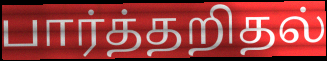
பார்த்தறிதல்